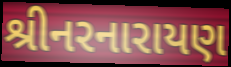
શ્રીનરનારાયણ